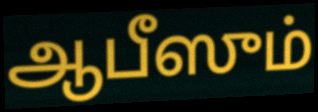
ஆபீஸும்